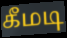
கீமடி